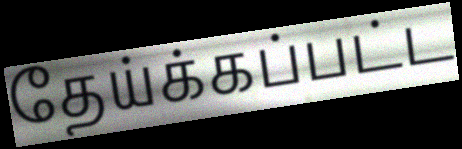
தேய்க்கப்பட்ட